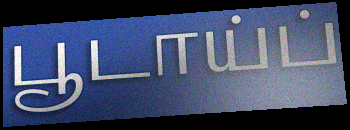
பூடாய்ப்